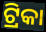
ଟ୍ରିକା